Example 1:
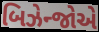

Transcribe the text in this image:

બિઝેન્જોએ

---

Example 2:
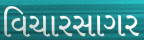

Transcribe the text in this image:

વિચારસાગર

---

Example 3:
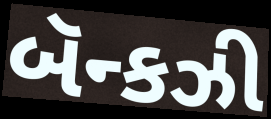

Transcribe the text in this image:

બૅન્કઝી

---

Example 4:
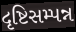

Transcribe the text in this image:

દૃષ્ટિસમ્પન્ન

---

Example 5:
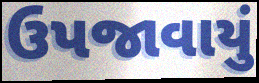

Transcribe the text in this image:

ઉપજાવાયું